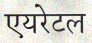
एयरेटल